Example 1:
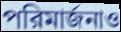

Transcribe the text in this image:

পরিমার্জনাও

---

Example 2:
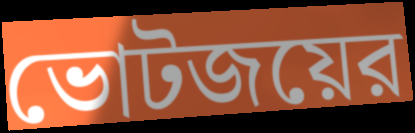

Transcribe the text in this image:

ভোটজয়ের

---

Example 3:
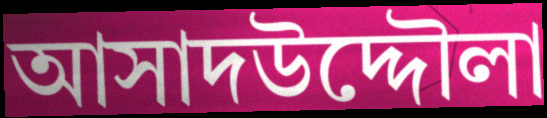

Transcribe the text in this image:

আসাদউদ্দৌলা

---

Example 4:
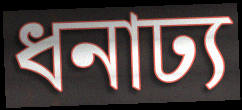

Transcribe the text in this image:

ধনাঢ্য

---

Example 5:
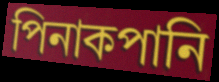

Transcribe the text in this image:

পিনাকপানি